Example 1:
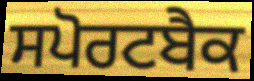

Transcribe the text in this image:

ਸਪੋਰਟਬੈਕ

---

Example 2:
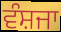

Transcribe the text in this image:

ਵੰਸ਼ਜਾ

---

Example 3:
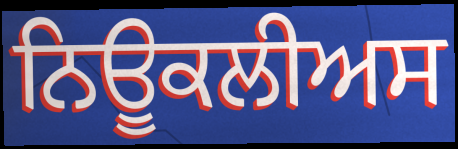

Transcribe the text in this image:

ਨਿਊਕਲੀਅਸ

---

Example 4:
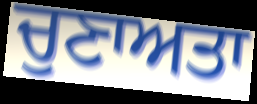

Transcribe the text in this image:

ਚੁਣਾਅਤਾ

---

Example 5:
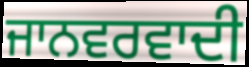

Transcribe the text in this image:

ਜਾਨਵਰਵਾਦੀ